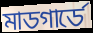
মাডগার্ডে